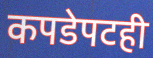
कपडेपटही